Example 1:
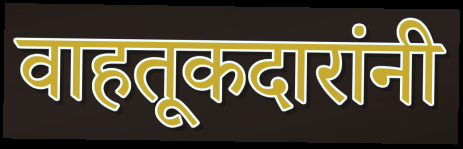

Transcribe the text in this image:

वाहतूकदारांनी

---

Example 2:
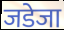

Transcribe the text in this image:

जडेजा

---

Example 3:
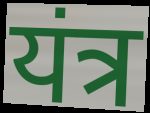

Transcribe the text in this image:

यंत्र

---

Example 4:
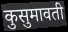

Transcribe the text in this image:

कुसुमावती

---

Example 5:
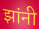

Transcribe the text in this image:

झांनी